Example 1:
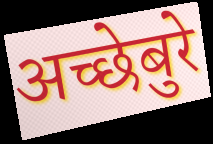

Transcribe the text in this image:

अच्छेबुरे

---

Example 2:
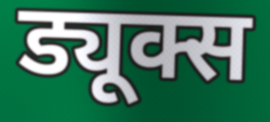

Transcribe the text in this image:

ड्यूक्स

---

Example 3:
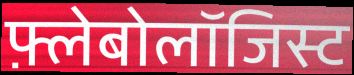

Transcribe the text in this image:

फ़्लेबोलॉजिस्ट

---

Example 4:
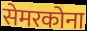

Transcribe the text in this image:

सेमरकोना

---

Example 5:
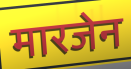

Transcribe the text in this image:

मारजेन